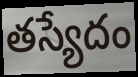
తస్యేదం